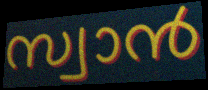
സ്വാൻ